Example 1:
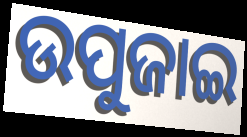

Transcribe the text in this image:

ଉପୁଜାଇ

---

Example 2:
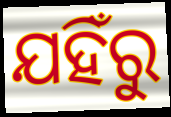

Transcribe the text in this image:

ଯହିଁରୁ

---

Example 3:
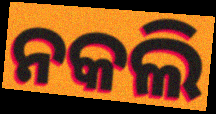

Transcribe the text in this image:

ନକଲି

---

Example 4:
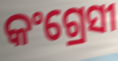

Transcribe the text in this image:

କଂଗ୍ରେସୀ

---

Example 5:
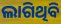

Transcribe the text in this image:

ଲାଗିଥିବି